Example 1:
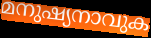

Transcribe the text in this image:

മനുഷ്യനാവുക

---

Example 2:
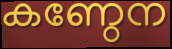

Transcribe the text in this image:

കണ്ഠേന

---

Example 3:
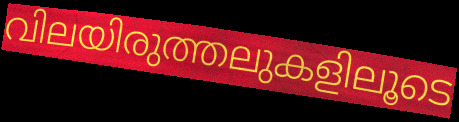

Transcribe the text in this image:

വിലയിരുത്തലുകളിലൂടെ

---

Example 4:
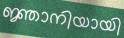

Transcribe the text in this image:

ജ്ഞാനിയായി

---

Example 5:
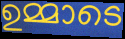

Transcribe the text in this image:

ഉമ്മാടെ